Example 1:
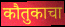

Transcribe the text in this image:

कौतुकाचा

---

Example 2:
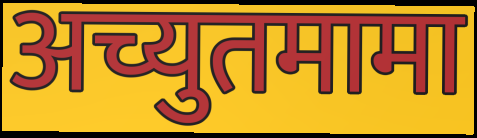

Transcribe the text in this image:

अच्युतमामा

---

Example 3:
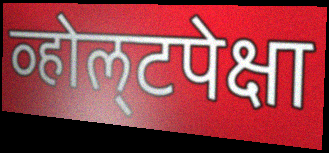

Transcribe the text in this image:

व्होल्टपेक्षा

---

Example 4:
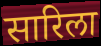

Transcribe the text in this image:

सारिला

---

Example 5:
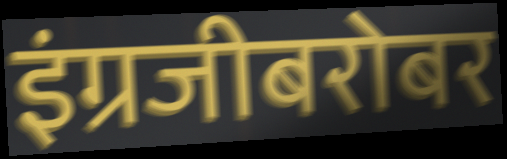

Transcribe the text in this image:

इंग्रजीबरोबर